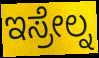
ಇಸ್ರೇಲ್ನ